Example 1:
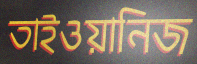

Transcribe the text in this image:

তাইওয়ানিজ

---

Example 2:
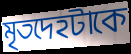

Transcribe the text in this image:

মৃতদেহটাকে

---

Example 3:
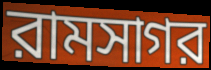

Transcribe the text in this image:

রামসাগর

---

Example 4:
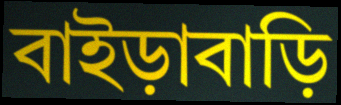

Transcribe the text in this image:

বাইড়াবাড়ি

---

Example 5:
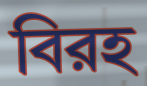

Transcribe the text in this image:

বিরহ